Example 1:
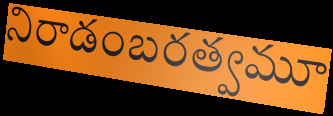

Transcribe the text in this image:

నిరాడంబరత్వమూ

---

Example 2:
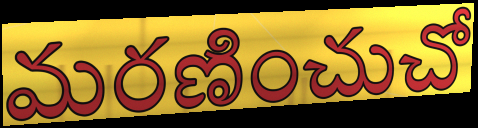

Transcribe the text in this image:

మరణించుచో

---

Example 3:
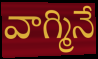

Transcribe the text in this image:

వాగ్మినే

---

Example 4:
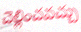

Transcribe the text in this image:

చెల్లించవచ్చు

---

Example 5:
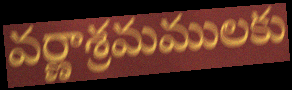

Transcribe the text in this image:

వర్ణాశ్రమములకు